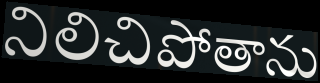
నిలిచిపోతాను